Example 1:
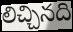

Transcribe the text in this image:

లిచ్చినది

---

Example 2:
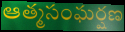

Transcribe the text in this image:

ఆత్మసంఘర్షణ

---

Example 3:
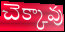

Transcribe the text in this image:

చెక్కావు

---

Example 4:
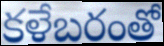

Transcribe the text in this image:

కళేబరంతో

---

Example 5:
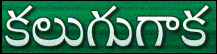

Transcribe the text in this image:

కలుగుగాక